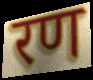
रण